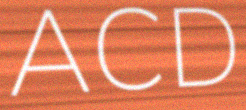
ACD